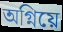
অগ্নিয়ে